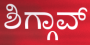
ಶಿಗ್ಗಾವ್